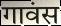
गावंस